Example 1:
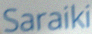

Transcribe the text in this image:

Saraiki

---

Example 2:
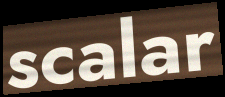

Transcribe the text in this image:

scalar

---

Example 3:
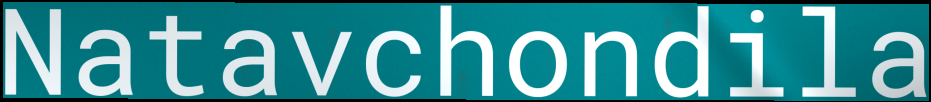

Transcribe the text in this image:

Natavchondila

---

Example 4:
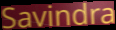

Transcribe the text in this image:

Savindra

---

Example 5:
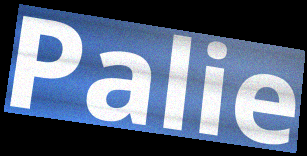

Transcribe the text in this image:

Palie